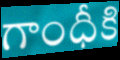
గాంధీకి